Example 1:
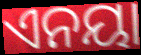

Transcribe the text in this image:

ଏନୟା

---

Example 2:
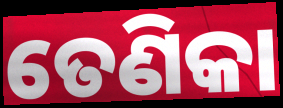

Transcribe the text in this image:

ତେଣିକା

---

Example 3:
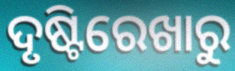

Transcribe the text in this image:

ଦୃଷ୍ଟିରେଖାରୁ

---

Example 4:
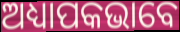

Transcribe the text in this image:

ଅଧ୍ୟାପକଭାବେ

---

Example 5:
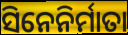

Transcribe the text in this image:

ସିନେନିର୍ମାତା